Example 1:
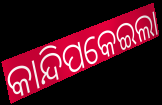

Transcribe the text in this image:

କାନ୍ଦିପକେଇଲା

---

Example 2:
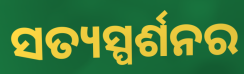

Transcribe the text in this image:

ସତ୍ୟସ୍ପର୍ଶନର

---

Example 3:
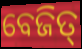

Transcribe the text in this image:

ବେଜିତ୍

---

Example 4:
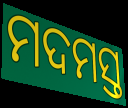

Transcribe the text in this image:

ମଦମସ୍ତ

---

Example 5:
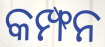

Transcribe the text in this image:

କମ୍ଫନ